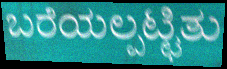
ಬರೆಯಲ್ಪಟ್ಟಿತು